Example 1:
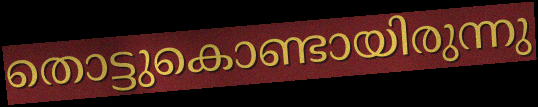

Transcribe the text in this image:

തൊട്ടുകൊണ്ടായിരുന്നു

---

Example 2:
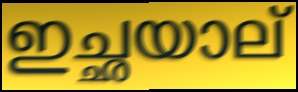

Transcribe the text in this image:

ഇച്ഛയാല്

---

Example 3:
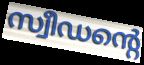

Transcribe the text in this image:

സ്വീഡന്റെ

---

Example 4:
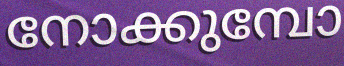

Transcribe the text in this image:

നോക്കുമ്പോ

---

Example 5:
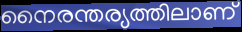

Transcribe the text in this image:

നൈരന്തര്യത്തിലാണ്